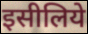
इसीलिये